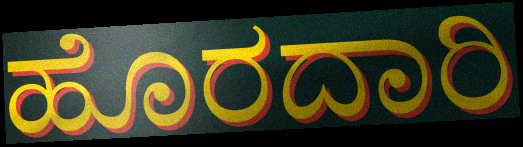
ಹೊರದಾರಿ